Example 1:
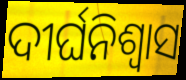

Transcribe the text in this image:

ଦୀର୍ଘନିଶ୍ୱାସ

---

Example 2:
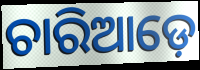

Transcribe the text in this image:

ଚାରିଆଡ଼େ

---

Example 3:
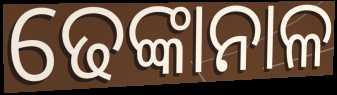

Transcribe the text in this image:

ଢେଙ୍କାନାଳ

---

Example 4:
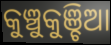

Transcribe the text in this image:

କୁଞ୍ଚୁକୁଞ୍ଚିଆ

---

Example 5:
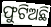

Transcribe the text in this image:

ଫୁଟିଅଛି